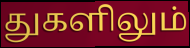
துகளிலும்